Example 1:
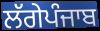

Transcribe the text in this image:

ਲੱਗੇਪੰਜਾਬ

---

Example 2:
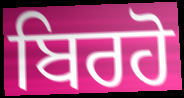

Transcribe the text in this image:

ਬਿਰਹੋ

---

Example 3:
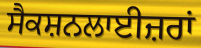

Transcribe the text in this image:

ਸੈਕਸ਼ਨਲਾਈਜ਼ਰਾਂ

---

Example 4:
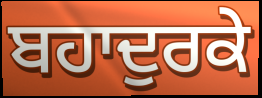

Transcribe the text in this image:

ਬਹਾਦੁਰਕੇ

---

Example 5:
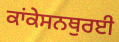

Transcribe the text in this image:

ਕਾਂਕੇਸਨਥੁਰਈ